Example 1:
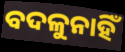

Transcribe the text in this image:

ବଦଳୁନାହିଁ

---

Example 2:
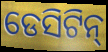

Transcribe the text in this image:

ଡେସିଟିନ୍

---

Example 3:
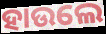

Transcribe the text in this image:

ହାଉଲେ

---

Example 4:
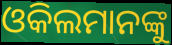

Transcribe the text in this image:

ଓକିଲମାନଙ୍କୁ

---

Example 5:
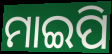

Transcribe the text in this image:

ମାଇପି